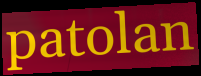
patolan